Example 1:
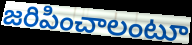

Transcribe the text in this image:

జరిపించాలంటూ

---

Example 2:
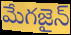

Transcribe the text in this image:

మేగజైన్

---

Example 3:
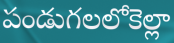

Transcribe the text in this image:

పండుగలలోకెల్లా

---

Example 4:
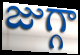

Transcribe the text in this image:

జుగ్గా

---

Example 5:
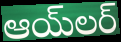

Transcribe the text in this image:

ఆయ్‌లర్